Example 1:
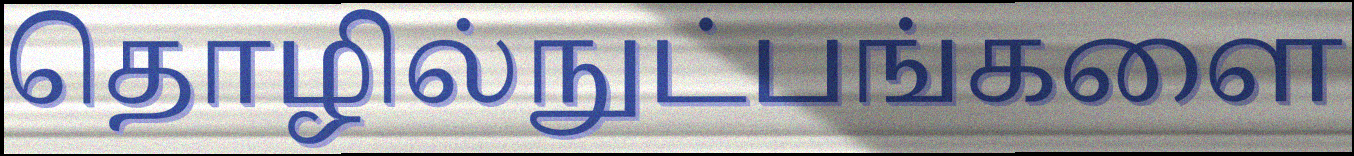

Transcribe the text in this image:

தொழில்நுட்பங்களை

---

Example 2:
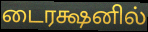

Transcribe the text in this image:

டைரக்ஷனில்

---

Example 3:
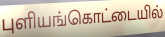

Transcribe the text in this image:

புளியங்கொட்டையில்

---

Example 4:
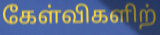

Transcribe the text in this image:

கேள்விகளிற்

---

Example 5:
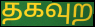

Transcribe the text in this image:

தகவுற